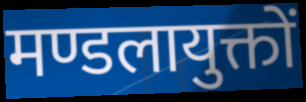
मण्डलायुक्तों